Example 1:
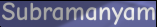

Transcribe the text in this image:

Subramanyam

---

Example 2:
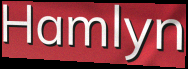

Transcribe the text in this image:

Hamlyn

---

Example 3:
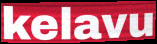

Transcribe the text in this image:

kelavu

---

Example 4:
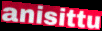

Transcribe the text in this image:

anisittu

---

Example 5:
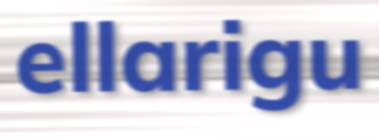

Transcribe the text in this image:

ellarigu